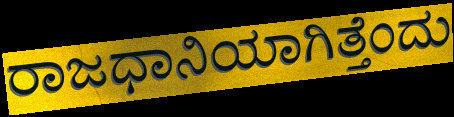
ರಾಜಧಾನಿಯಾಗಿತ್ತೆಂದು